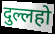
दुल्लहो